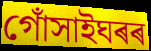
গোঁসাইঘৰৰ